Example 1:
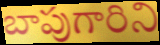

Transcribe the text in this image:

బాపుగారిని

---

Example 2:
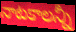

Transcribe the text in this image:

నాటకాలన్నీ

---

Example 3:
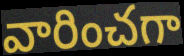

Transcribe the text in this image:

వారించగా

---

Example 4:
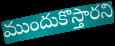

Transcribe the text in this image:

ముందుకొస్తారని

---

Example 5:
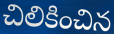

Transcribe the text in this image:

చిలికించిన